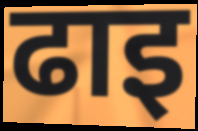
ढाइ